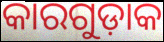
କାରଗୁଡ଼ାକ